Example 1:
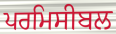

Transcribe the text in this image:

ਪਰਮਿਸੀਬਲ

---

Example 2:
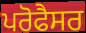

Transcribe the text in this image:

ਪਰੋਫੈਸਰ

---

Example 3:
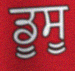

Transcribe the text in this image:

ਡੂਸੂ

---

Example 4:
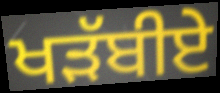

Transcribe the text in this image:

ਖੜੱਬੀਏ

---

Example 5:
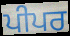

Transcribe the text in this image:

ਪੀਪਰ